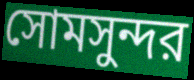
সোমসুন্দর